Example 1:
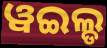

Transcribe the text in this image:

ୱଇଲ୍ଡ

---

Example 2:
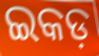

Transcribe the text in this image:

ଇକଡ଼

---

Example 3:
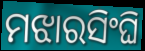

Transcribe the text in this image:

ମଝାରସିଂଘି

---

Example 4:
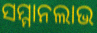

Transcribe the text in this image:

ସମ୍ମାନଲାଭ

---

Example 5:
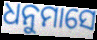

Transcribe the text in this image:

ଧନୁମାସେ